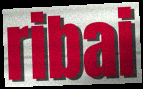
ribai